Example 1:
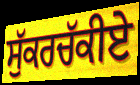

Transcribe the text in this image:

ਸੁੱਕਰਚੱਕੀਏ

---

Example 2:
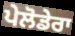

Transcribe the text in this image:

ਪੇਲੋਡੇਰਾ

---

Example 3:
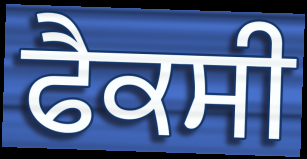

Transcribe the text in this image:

ਫੈਕਸੀ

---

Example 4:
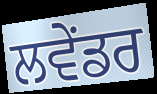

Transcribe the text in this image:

ਲਵੇਂਡਰ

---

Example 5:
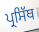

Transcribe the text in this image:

ਪ੍ਰਸਿੱਥ